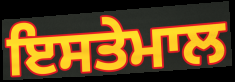
ਇਸਤੇਮਾਲ